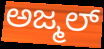
ಅಜ್ಮಲ್